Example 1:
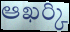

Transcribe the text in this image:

ఆఖర్కి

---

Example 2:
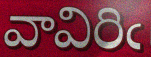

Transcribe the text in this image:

వావిరిఁ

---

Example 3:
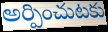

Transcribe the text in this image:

అర్పించుటకు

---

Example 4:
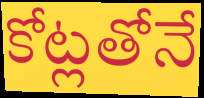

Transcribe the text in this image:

కోట్లతోనే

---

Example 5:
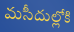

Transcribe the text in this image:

మసీదుల్లోకి